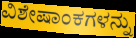
ವಿಶೇಷಾಂಕಗಳನ್ನು